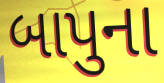
બાપુના